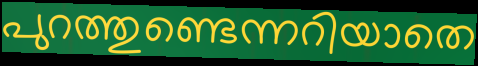
പുറത്തുണ്ടെന്നറിയാതെ